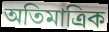
অতিমাত্রিক